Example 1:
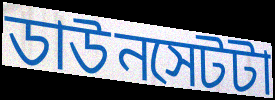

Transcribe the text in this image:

ডাউনসেটটা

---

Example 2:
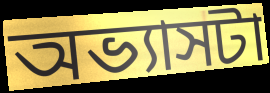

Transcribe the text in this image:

অভ্যাসটা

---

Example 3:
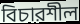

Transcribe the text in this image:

বিচারশীল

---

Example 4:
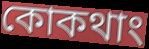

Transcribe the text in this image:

কোকথাং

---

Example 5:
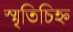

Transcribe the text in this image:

স্মৃতিচিহ্ন